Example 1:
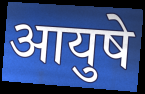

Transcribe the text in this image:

आयुषे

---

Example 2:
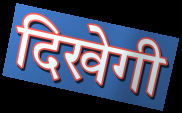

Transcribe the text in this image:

दिखेगी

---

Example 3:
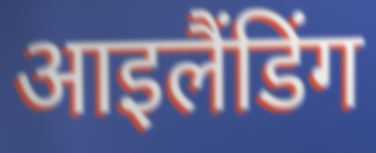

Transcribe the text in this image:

आइलैंडिंग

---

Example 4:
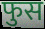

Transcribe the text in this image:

फुस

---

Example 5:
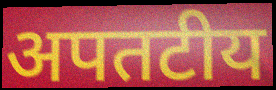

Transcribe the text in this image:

अपतटीय